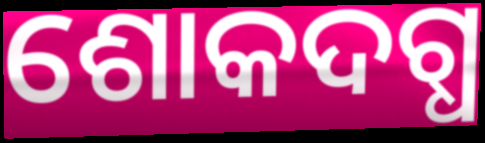
ଶୋକଦଗ୍ଧ